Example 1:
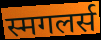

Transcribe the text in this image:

स्‍मगलर्स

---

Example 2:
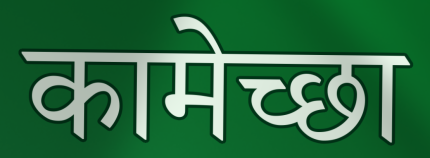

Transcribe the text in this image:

कामेच्छा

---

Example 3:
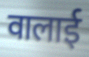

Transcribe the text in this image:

वालाई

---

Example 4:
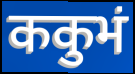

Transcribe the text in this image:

ककुभं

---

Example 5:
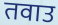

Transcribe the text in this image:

तवाउ